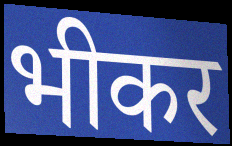
भीकर